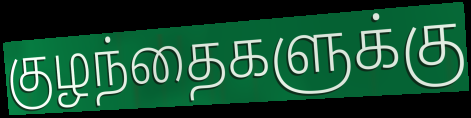
குழந்தைகளுக்கு